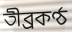
তীব্রকণ্ঠ